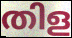
തിള